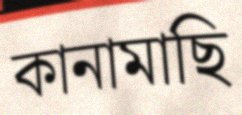
কানামাছি